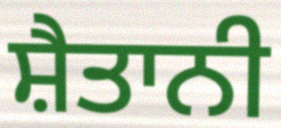
ਸ਼ੈਤਾਨੀ